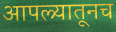
आपल्यातूनच